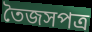
তৈজসপত্র